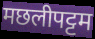
मछलीपट्टम